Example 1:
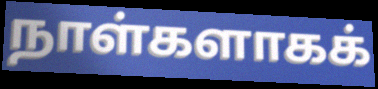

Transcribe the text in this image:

நாள்களாகக்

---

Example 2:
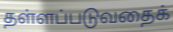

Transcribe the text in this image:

தள்ளப்படுவதைக்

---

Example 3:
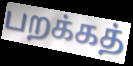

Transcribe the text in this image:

பறக்கத்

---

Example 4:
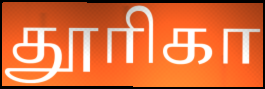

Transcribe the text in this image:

தூரிகா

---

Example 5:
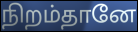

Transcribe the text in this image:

நிறம்தானே